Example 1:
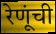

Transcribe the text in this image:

रेणूंची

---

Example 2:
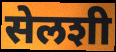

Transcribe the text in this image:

सेलशी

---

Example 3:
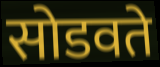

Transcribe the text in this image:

सोडवते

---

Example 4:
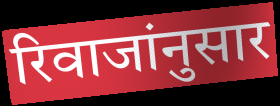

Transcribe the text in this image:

रिवाजांनुसार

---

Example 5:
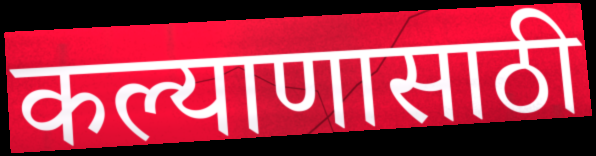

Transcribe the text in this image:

कल्याणासाठी